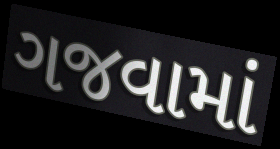
ગજવામાં